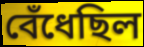
বেঁধেছিল